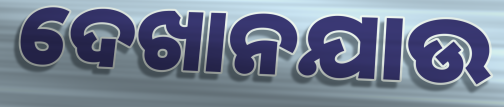
ଦେଖାନଯାଉ